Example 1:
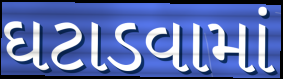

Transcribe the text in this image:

ઘટાડવામાં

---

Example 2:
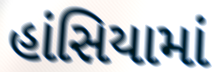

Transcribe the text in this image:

હાંસિયામાં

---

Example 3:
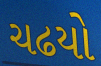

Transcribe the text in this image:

ચઢયો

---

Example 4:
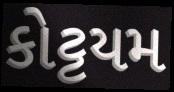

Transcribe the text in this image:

કોટ્ટયમ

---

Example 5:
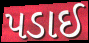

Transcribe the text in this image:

પડાઈ